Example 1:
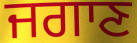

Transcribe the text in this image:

ਜਗਾਣ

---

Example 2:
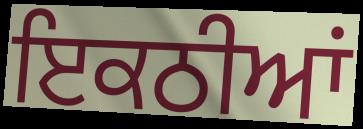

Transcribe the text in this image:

ਇਕਠੀਆਂ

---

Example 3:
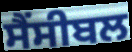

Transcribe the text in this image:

ਸੈਂਸੀਬਲ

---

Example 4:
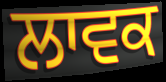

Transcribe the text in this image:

ਲਾਵਕ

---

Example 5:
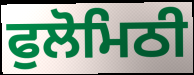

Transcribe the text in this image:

ਫੁਲੋਮਿਠੀ